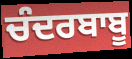
ਚੰਦਰਬਾਬੂ